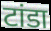
टांडा